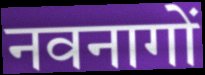
नवनागों